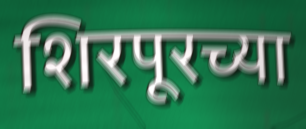
शिरपूरच्या